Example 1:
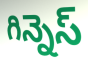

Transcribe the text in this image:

గిన్నెస్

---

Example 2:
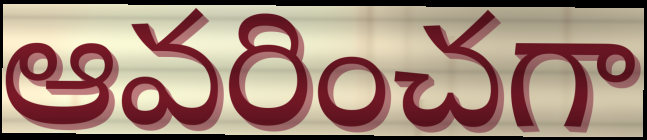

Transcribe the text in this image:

ఆవరించగా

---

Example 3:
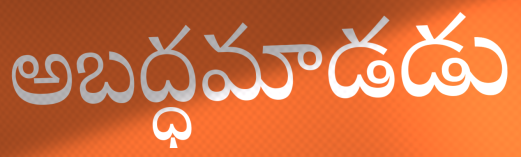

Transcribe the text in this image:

అబద్ధమాడడు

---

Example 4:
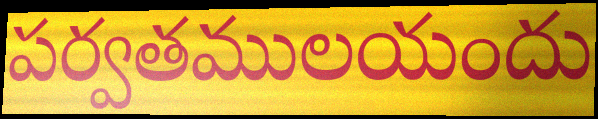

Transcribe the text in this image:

పర్వతములయందు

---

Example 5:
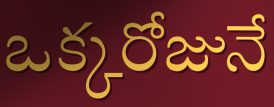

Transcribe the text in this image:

ఒక్కరోజునే